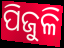
ପିଜୁଳି